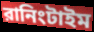
রানিংটাইম